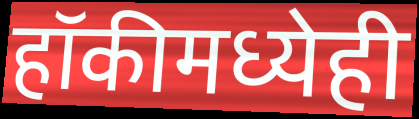
हॉकीमध्येही